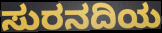
ಸುರನದಿಯ